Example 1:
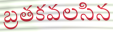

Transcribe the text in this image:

బ్రతకవలసిన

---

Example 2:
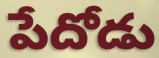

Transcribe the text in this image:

పేదోడు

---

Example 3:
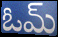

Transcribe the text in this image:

ఓమ్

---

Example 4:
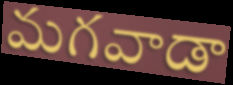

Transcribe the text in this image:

మగవాడా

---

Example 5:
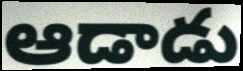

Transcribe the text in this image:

ఆడాడు